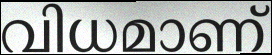
വിധമാണ്